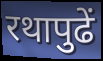
रथापुढें